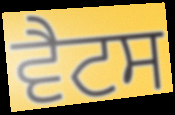
ਵੈਟਸ